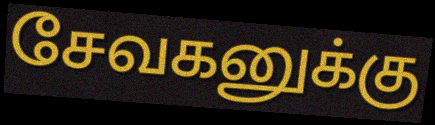
சேவகனுக்கு